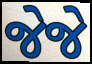
જેજે